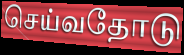
செய்வதோடு